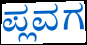
ಪ್ಲವಗ